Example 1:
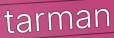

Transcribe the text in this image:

tarman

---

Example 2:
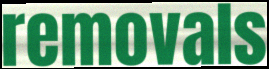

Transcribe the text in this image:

removals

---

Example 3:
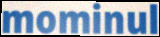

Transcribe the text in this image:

mominul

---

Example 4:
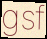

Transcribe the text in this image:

gsf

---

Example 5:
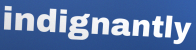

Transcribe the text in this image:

indignantly